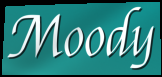
Moody